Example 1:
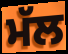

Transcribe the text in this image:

ਮੱਲ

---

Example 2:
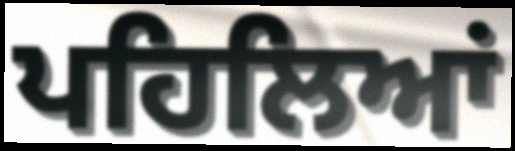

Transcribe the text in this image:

ਪਹਿਲਿਆਂ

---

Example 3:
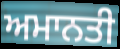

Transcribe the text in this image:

ਅਮਾਨਤੀ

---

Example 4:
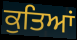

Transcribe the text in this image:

ਕੁਤਿਆਂ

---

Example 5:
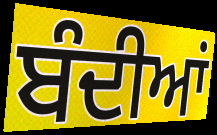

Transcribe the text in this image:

ਬੰਦੀਆਂ